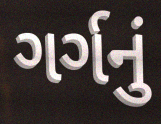
ગર્ગનું